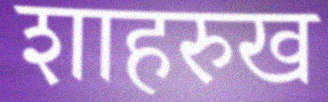
शाहरुख